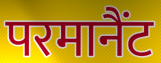
परमानैंट